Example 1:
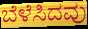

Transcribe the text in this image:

ಬೆಳೆಸಿದವು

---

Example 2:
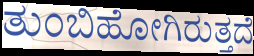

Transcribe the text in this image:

ತುಂಬಿಹೋಗಿರುತ್ತದೆ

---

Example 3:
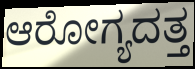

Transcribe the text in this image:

ಆರೋಗ್ಯದತ್ತ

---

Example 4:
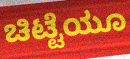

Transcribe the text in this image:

ಚಿಟ್ಟೆಯೂ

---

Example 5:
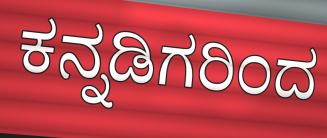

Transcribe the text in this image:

ಕನ್ನಡಿಗರಿಂದ